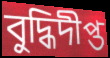
বুদ্ধিদীপ্ত